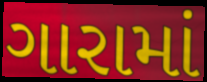
ગારામાં